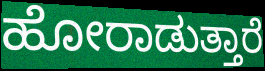
ಹೋರಾಡುತ್ತಾರೆ